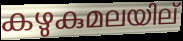
കഴുകുമലയില്